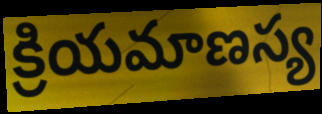
క్రియమాణస్య